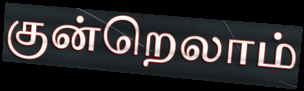
குன்றெலாம்